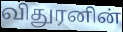
விதுரனின்